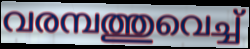
വരമ്പത്തുവെച്ച്